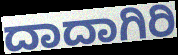
ದಾದಾಗಿರಿ